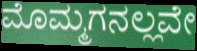
ಮೊಮ್ಮಗನಲ್ಲವೇ